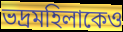
ভদ্রমহিলাকেও